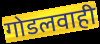
गोडलवाही